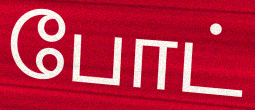
போட்